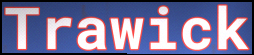
Trawick